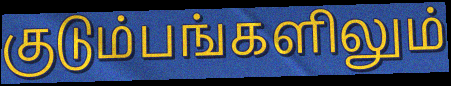
குடும்பங்களிலும்